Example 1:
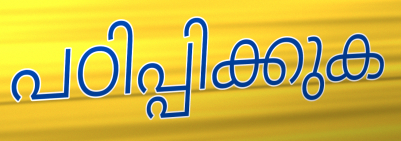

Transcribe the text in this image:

പഠിപ്പിക്കുക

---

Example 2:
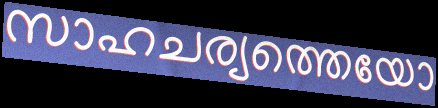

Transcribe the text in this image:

സാഹചര്യത്തെയോ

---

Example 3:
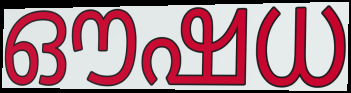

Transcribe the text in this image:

ഔഷധ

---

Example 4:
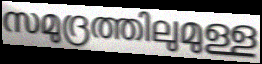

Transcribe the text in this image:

സമുദ്രത്തിലുമുള്ള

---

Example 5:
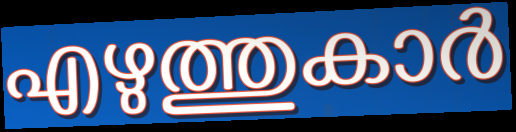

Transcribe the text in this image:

എഴുത്തുകാർ